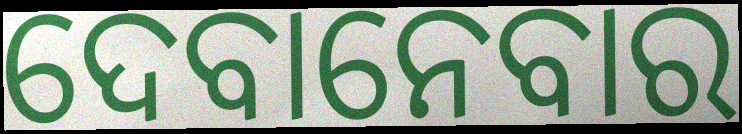
ଦେବାନେବାର